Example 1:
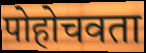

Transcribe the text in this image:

पोहोचवता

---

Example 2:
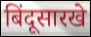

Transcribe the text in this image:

बिंदूसारखे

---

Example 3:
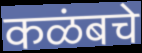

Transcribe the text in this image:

कळंबचे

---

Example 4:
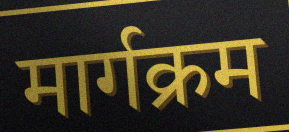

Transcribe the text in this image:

मार्गक्रम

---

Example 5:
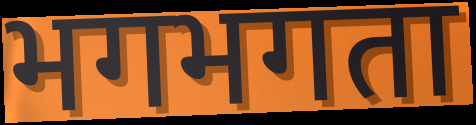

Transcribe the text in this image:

भगभगता